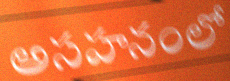
అసహనంలో